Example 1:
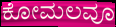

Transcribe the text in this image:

ಕೋಮಲವೂ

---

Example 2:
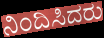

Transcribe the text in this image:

ನಿಂದಿಸಿದರು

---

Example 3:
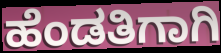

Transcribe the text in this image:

ಹೆಂಡತಿಗಾಗಿ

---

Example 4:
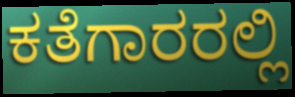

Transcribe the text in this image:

ಕತೆಗಾರರಲ್ಲಿ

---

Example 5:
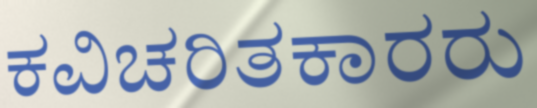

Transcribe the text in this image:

ಕವಿಚರಿತಕಾರರು